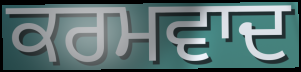
ਕਰਮਵਾਦ